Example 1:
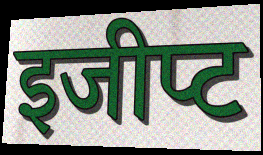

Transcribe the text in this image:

इजीप्ट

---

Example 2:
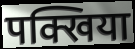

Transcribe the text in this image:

पक्खिया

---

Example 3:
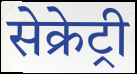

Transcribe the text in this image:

सेक्रेट्री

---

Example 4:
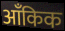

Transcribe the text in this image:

आँकिक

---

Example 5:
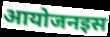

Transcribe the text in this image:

आयोजनइस